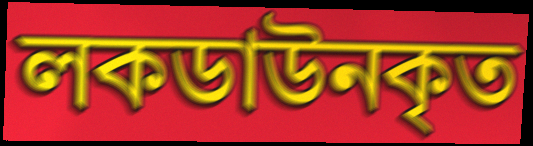
লকডাউনকৃত